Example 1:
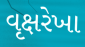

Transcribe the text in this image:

વૃક્ષરેખા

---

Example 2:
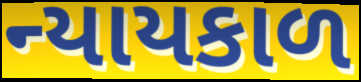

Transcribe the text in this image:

ન્યાયકાળ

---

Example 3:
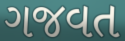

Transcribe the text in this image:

ગજવત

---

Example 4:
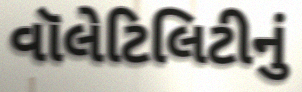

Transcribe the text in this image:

વૉલેટિલિટીનું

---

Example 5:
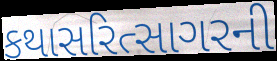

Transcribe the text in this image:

કથાસરિત્સાગરની